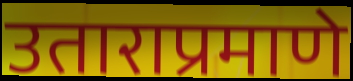
उताराप्रमाणे